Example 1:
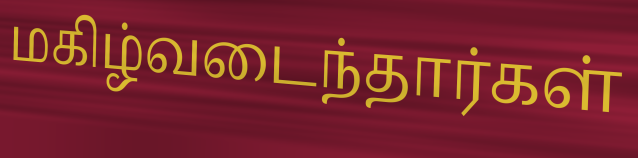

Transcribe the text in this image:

மகிழ்வடைந்தார்கள்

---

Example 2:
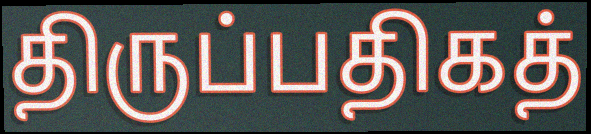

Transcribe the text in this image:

திருப்பதிகத்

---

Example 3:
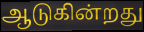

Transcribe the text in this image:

ஆடுகின்றது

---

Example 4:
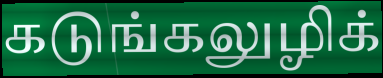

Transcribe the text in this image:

கடுங்கலுழிக்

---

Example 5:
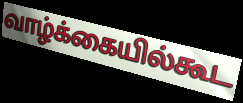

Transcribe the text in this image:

வாழ்க்கையில்கூட